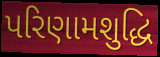
પરિણામશુદ્ધિ